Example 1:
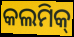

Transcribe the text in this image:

କଲମିକ୍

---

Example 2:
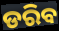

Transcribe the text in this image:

ଡରିବ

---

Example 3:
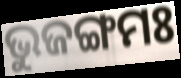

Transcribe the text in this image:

ଭୁଜଙ୍ଗମଃ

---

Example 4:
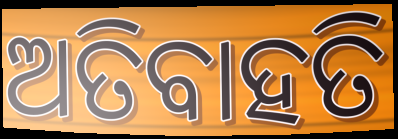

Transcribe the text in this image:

ଅତିବାହତି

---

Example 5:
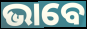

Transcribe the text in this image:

ଭାବେ